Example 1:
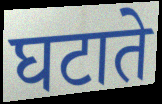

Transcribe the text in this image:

घटाते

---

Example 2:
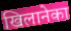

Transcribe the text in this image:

खिलानेका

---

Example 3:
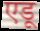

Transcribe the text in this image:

एडू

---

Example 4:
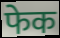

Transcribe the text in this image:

फेक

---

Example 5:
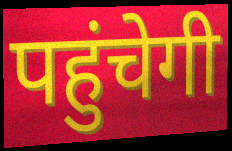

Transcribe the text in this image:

पहुंचेगी